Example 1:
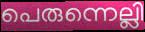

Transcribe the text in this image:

പെരുന്നെല്ലി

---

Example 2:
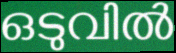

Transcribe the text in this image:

ഒടുവിൽ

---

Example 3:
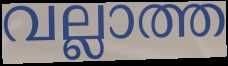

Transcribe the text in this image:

വല്ലാത്ത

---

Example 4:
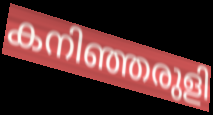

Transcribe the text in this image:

കനിഞ്ഞരുളി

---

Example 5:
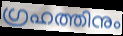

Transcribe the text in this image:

ഗ്രഹത്തിനും